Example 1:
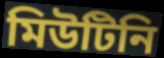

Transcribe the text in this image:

মিউটিনি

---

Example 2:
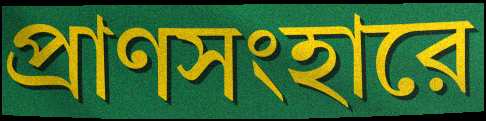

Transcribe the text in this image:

প্রাণসংহারে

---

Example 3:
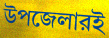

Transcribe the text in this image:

উপজেলারই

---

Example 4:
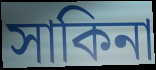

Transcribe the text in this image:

সাকিনা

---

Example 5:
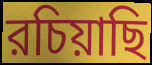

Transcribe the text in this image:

রচিয়াছি